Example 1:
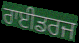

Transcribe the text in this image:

ਰਾਈਡਰਜ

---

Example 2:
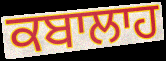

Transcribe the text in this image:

ਕਬਾਲਾਹ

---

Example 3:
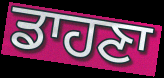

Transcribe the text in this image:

ਡਾਹਣਾ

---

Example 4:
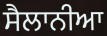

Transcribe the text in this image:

ਸੈਲਾਨੀਆ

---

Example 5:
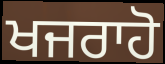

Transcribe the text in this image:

ਖਜਰਾਹੋ